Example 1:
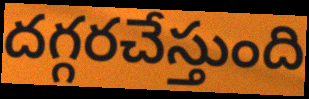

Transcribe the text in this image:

దగ్గరచేస్తుంది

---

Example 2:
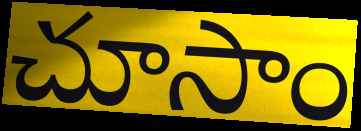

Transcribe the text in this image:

చూసాం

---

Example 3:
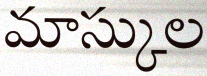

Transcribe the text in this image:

మాస్కుల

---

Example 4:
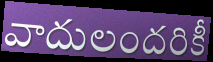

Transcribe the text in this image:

వాదులందరికీ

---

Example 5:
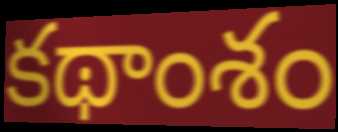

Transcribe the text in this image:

కథాంశం